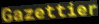
Gazettier